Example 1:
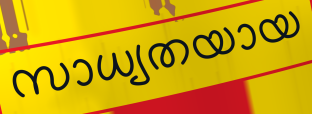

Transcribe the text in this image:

സാധ്യതയായ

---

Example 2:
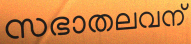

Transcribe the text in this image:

സഭാതലവന്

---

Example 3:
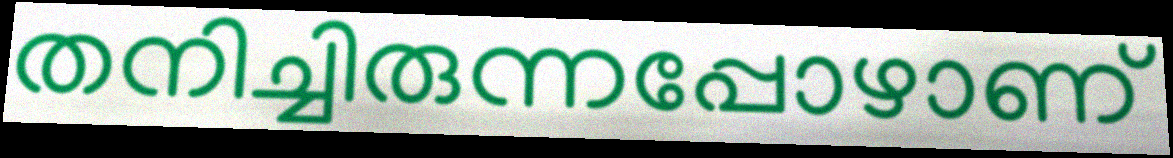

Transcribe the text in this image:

തനിച്ചിരുന്നപ്പോഴാണ്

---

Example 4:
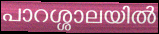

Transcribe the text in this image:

പാറശ്ശാലയിൽ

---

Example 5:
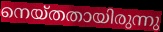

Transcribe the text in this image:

നെയ്തതായിരുന്നു